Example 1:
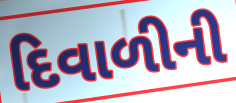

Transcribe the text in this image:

દિવાળીની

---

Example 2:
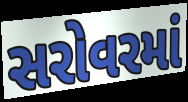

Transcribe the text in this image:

સરોવરમાં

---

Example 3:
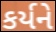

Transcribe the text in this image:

કર્યને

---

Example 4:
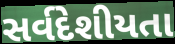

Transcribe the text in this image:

સર્વદેશીયતા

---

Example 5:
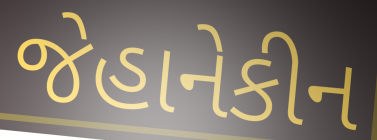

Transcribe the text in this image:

જેહાનેકીન